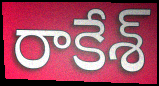
రాకేశ్